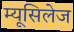
म्यूसिलेज